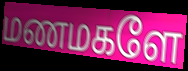
மணமகளே